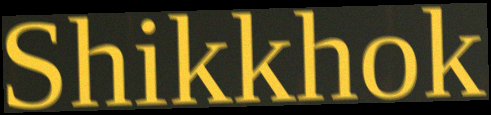
Shikkhok